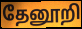
தேனூறி